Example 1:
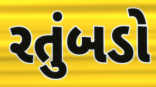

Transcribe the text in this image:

રતુંબડો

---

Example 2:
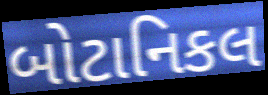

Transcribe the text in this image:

બોટાનિકલ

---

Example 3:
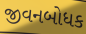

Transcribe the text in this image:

જીવનબોધક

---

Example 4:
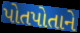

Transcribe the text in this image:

પોતપોતાને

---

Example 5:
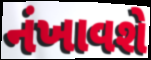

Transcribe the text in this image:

નંખાવશે